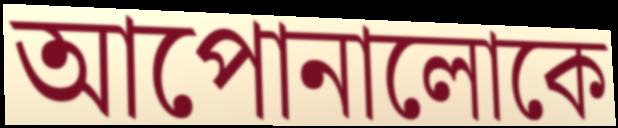
আপোনালোকে